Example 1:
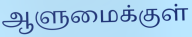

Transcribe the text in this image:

ஆளுமைக்குள்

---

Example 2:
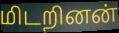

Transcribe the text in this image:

மிடறினன்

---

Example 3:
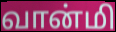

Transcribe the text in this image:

வான்மி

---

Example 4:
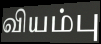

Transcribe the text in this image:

வியம்பு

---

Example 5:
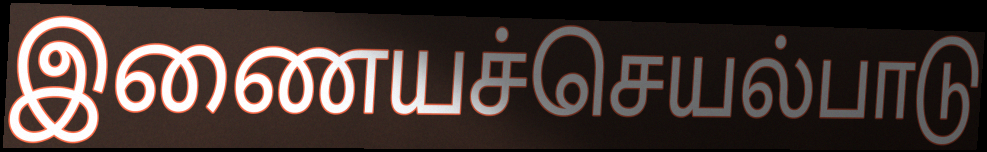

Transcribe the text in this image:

இணையச்செயல்பாடு